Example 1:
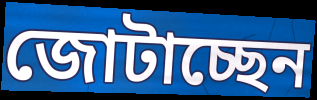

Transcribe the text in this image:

জোটাচ্ছেন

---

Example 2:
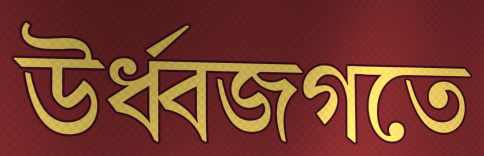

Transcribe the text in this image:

উর্ধ্বজগতে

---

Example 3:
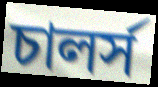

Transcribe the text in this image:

চালর্স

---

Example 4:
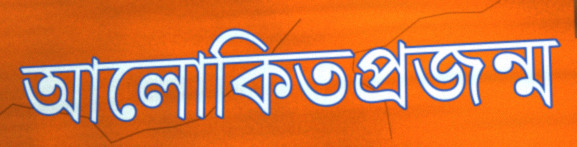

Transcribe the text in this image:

আলোকিতপ্রজন্ম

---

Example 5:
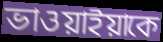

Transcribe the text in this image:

ভাওয়াইয়াকে